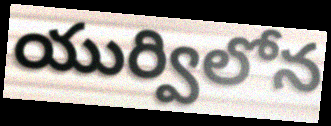
యుర్విలోన